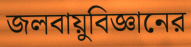
জলবায়ুবিজ্ঞানের